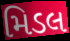
મિડલ